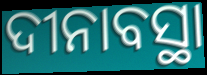
ଦୀନାବସ୍ଥା